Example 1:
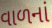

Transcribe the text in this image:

વાળનાં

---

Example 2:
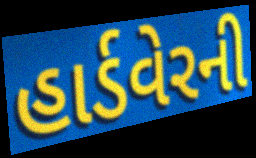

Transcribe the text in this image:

હાર્ડવેરની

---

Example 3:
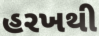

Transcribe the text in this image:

હરખથી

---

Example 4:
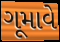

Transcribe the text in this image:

ગૂમાવે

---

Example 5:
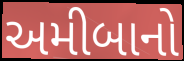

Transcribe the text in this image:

અમીબાનો